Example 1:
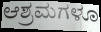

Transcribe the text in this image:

ಆಶ್ರಮಗಳೂ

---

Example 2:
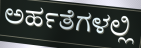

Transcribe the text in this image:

ಅರ್ಹತೆಗಳಲ್ಲಿ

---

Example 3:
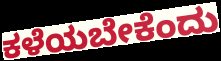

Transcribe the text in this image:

ಕಳೆಯಬೇಕೆಂದು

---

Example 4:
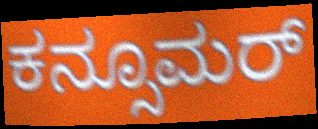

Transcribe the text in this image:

ಕನ್ಸೂಮರ್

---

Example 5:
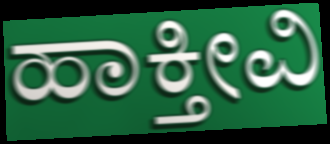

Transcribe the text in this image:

ಹಾಕ್ತೀವಿ